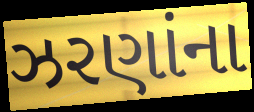
ઝરણાંના